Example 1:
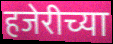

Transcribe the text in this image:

हजेरीच्या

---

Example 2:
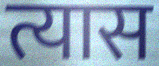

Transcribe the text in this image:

त्यास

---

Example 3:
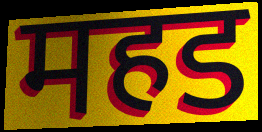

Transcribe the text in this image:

महड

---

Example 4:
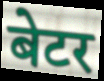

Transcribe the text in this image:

बेटर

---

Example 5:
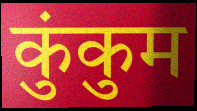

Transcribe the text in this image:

कुंकुम